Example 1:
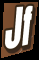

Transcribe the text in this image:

Jf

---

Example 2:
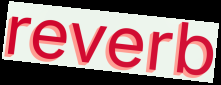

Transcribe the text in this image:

reverb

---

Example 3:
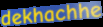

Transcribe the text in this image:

dekhachhe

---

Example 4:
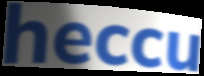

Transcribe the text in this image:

heccu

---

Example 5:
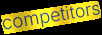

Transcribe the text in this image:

competitors